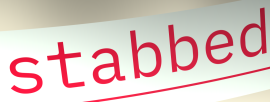
stabbed